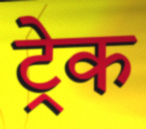
ट्रेक